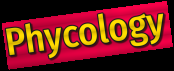
Phycology